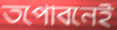
তপোবনেই